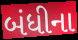
બંધીના